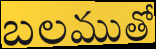
బలముతో